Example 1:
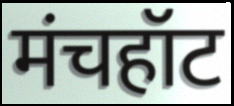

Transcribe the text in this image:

मंचहॉट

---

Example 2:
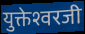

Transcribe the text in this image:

युक्तेश्वरजी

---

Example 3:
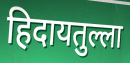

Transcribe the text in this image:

हिदायतुल्ला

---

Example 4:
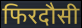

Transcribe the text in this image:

फिरदौसी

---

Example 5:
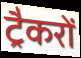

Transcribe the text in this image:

ट्रैकरों